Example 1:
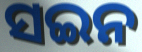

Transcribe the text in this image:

ସଇନ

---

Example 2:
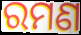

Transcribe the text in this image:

ରମଣ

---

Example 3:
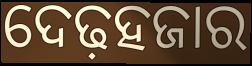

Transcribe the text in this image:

ଦେଢ଼ହଜାର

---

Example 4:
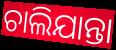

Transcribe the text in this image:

ଚାଲିଯାନ୍ତା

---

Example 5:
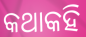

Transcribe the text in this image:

କଥାକହି